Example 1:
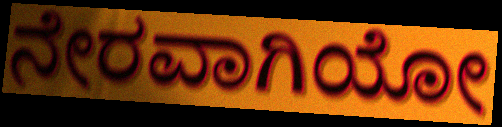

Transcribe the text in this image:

ನೇರವಾಗಿಯೋ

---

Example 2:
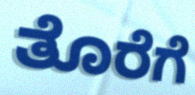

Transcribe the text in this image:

ತೊರೆಗೆ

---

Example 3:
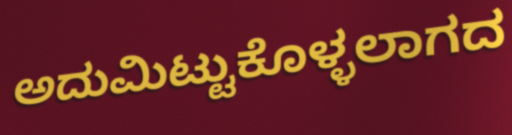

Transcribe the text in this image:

ಅದುಮಿಟ್ಟುಕೊಳ್ಳಲಾಗದ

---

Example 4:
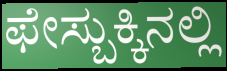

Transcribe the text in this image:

ಫೇಸ್ಬುಕ್ಕಿನಲ್ಲಿ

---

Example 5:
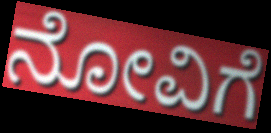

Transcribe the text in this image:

ನೋವಿಗೆ